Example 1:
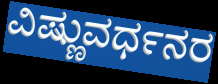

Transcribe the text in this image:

ವಿಷ್ಣುವರ್ಧನರ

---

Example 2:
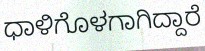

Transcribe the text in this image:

ಧಾಳಿಗೊಳಗಾಗಿದ್ದಾರೆ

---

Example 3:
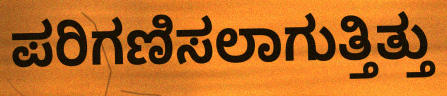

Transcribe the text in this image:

ಪರಿಗಣಿಸಲಾಗುತ್ತಿತ್ತು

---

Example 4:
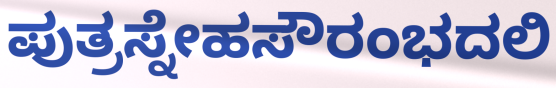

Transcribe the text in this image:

ಪುತ್ರಸ್ನೇಹಸೌರಂಭದಲಿ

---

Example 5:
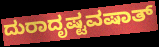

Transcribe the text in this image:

ದುರಾದೃಷ್ಟವಷಾತ್